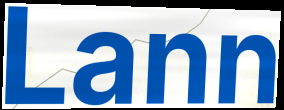
Lann